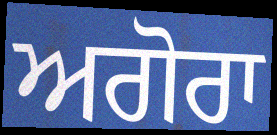
ਅਗੋਰਾ